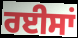
ਰਈਸਾਂ